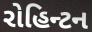
રોહિન્ટન